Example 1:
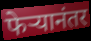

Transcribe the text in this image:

फेऱ्यानंतर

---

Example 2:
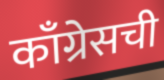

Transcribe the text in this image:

काँग्रेसची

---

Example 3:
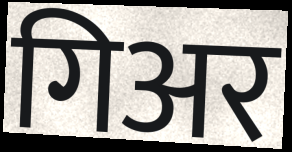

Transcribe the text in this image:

गिअर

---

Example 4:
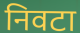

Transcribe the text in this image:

निवटा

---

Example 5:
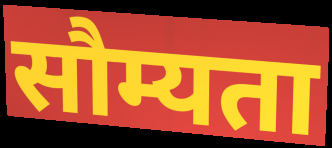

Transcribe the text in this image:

सौम्यता